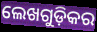
ଲେଖଗୁଡ଼ିକର